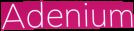
Adenium